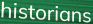
historians